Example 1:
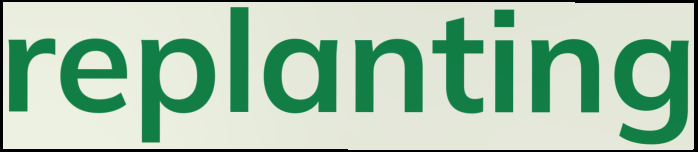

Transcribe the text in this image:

replanting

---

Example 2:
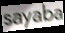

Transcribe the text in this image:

sayaba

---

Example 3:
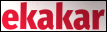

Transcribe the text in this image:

ekakar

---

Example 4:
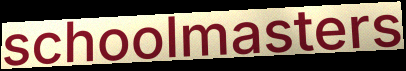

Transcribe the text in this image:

schoolmasters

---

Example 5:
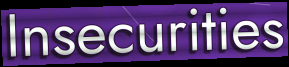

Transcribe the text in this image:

Insecurities